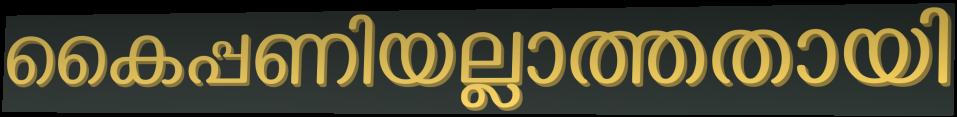
കൈപ്പണിയല്ലാത്തതായി